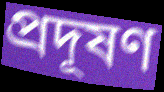
প্ৰদূষণ